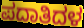
ಪದಾತಿದಳ